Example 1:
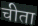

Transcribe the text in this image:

चीता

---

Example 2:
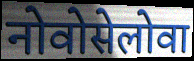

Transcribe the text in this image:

नोवोसेलोवा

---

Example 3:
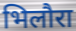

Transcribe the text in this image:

भिलौरा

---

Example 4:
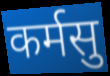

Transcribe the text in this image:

कर्मसु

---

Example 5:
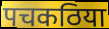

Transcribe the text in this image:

पचकठिया